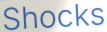
Shocks